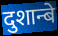
दुशान्बे